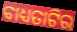
ବାଧ୍ୟତାଟିର